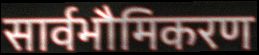
सार्वभौमिकरण